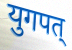
युगपत्